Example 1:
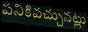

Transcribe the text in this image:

పనికివచ్చునట్లు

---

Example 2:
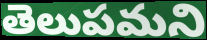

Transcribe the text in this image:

తెలుపమని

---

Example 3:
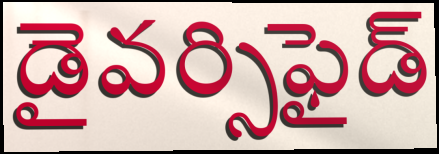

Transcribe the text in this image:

డైవర్సిఫైడ్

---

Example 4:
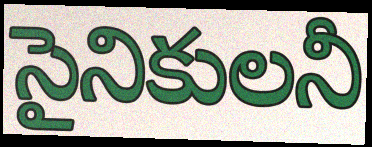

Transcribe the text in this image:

సైనికులనీ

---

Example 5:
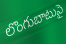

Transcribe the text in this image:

లొంగుబాటుపై